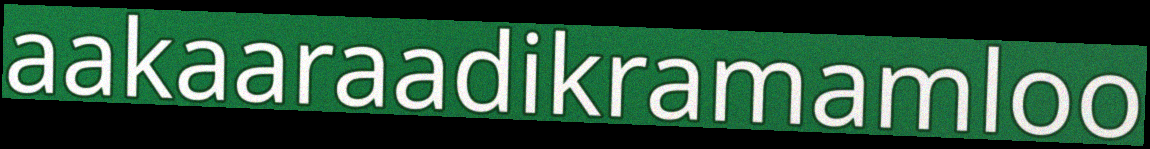
aakaaraadikramamloo